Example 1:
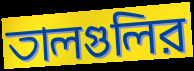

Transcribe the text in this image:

তালগুলির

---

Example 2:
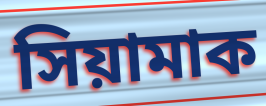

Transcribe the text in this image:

সিয়ামাক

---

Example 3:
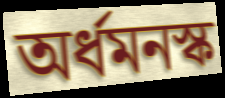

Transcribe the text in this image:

অর্ধমনস্ক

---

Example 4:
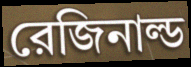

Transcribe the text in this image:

রেজিনাল্ড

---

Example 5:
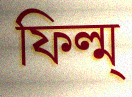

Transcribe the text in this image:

ফিল্ম্